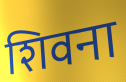
शिवना